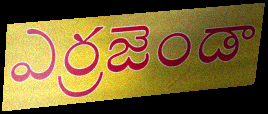
ఎర్రజెండా